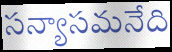
సన్యాసమనేది